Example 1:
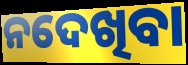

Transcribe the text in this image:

ନଦେଖିବା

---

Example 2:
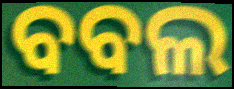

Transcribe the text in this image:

ବବଲ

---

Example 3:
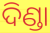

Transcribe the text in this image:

ଦିଣ୍ଡା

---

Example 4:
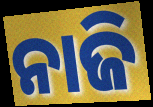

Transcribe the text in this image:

ନାଜି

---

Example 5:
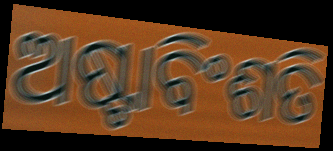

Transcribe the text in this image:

ଅଷ୍ଟାବିଂଶତି